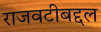
राजवटीबद्दल